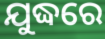
ଯୁଦ୍ଧରେ